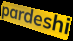
pardeshi